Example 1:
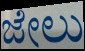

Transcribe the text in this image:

ಜೇಲು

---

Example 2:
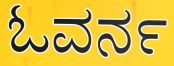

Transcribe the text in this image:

ಓವರ್ನ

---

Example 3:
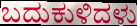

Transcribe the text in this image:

ಬದುಕುಳಿದಳು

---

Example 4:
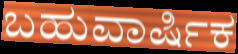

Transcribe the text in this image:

ಬಹುವಾರ್ಷಿಕ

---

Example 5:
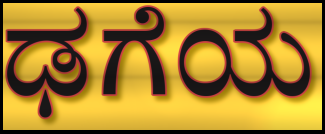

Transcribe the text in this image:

ಢಗೆಯ